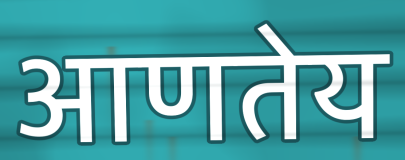
आणतेय